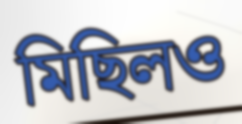
মিছিলও